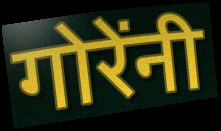
गोरेंनी